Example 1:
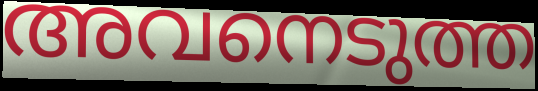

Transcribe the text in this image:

അവനെടുത്ത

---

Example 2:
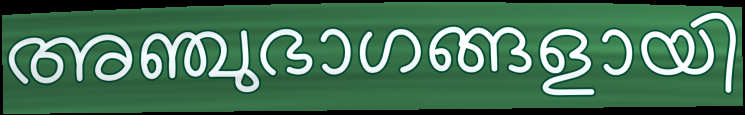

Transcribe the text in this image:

അഞ്ചുഭാഗങ്ങളായി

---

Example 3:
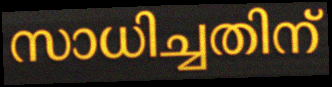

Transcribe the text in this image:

സാധിച്ചതിന്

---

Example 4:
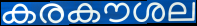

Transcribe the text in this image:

കരകൗശല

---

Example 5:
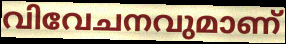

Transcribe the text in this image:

വിവേചനവുമാണ്